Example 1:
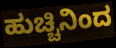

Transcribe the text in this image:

ಹುಚ್ಚಿನಿಂದ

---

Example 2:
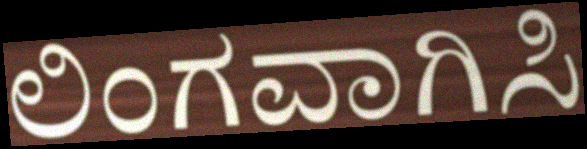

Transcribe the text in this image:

ಲಿಂಗವಾಗಿಸಿ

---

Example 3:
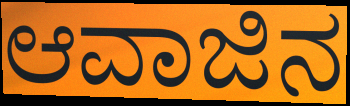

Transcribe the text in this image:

ಆವಾಜಿನ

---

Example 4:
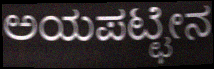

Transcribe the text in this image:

ಅಯಪಟ್ಟೇನ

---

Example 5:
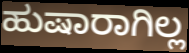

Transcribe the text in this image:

ಹುಷಾರಾಗಿಲ್ಲ